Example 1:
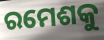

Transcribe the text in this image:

ରମେଶକୁ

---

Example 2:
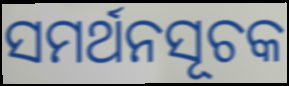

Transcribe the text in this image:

ସମର୍ଥନସୂଚକ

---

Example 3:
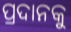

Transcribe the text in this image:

ପ୍ରଦାନକୁ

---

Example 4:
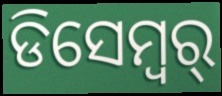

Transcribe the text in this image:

ଡିସେମ୍ବର୍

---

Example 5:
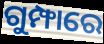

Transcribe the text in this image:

ଗୁମ୍ଫାରେ